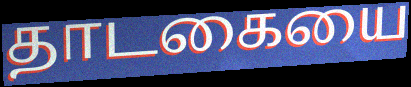
தாடகையை